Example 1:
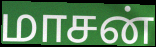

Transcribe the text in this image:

மாசன்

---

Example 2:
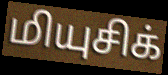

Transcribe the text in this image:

மியுசிக்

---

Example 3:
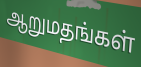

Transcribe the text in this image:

ஆறுமதங்கள்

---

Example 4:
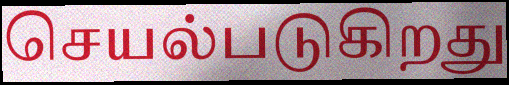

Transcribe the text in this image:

செயல்படுகிறது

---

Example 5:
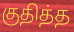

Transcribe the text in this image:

குதித்த